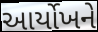
આર્યોખને